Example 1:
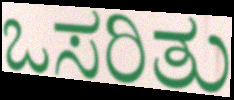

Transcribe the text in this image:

ಒಸರಿತು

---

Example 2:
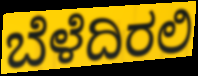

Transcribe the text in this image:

ಬೆಳೆದಿರಲಿ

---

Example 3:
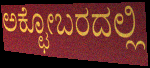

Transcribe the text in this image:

ಅಕ್ಟೋಬರದಲ್ಲಿ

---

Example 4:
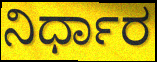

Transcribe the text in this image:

ನಿರ್ಧಾರ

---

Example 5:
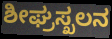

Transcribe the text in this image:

ಶೀಘ್ರಸ್ಖಲನ